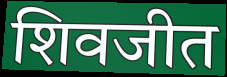
शिवजीत